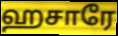
ஹசாரே